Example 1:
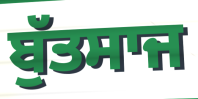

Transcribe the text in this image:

ਬੁੱਤਸਾਜ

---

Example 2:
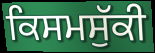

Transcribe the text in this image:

ਕਿਸਮਸੁੱਕੀ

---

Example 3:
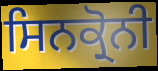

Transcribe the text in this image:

ਸਿਨਕ੍ਰੋਨੀ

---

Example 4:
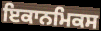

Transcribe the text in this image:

ਇਕਾਨਮਿਕਸ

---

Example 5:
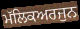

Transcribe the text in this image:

ਮੱਲਿਕਅਰਜੁਨ